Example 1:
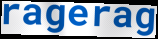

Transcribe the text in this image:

ragerag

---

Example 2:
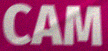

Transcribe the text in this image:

CAM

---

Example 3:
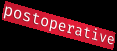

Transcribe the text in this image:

postoperative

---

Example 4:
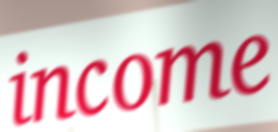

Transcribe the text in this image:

income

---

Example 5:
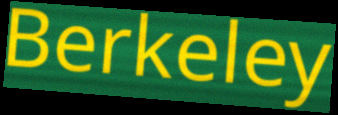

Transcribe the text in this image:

Berkeley